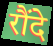
रौंदे